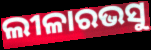
ଲୀଳାରଭସୁ